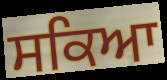
ਸਕਿਆ